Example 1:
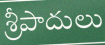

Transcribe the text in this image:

శ్రీపాదులు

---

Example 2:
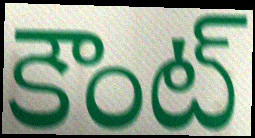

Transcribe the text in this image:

కౌంట్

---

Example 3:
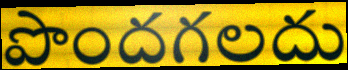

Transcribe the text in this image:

పొందగలదు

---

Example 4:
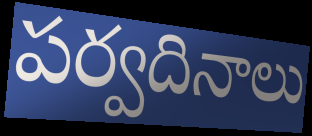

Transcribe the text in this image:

పర్వదినాలు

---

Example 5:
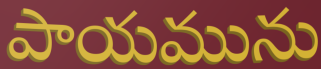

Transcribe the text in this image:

పాయమును